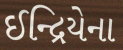
ઈન્દ્રિયેના